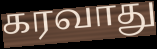
கரவாது